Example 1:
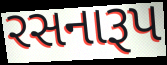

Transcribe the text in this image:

રસનારૂપ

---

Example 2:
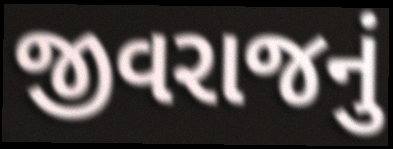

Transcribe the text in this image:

જીવરાજનું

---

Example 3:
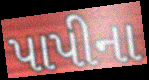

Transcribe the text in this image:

પાપીના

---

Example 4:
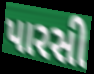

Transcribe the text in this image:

પારસી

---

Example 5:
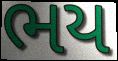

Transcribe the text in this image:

ભય